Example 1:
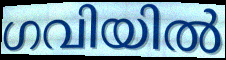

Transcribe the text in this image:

ഗവിയിൽ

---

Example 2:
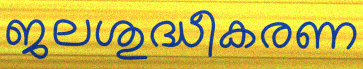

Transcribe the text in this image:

ജലശുദ്ധീകരണ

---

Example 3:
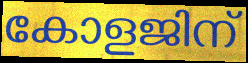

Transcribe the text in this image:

കോളജിന്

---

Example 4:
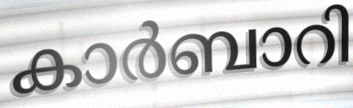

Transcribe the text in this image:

കാർബാറി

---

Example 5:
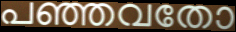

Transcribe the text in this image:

പഞ്ഞവതോ